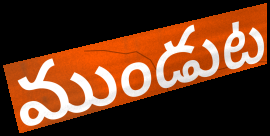
ముండుట